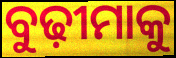
ବୁଢ଼ୀମାକୁ